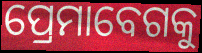
ପ୍ରେମାବେଗକୁ